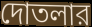
দোতলার